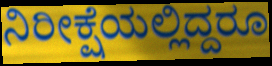
ನಿರೀಕ್ಷೆಯಲ್ಲಿದ್ದರೂ